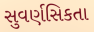
સુવર્ણસિકતા